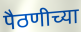
पैठणीच्या